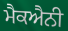
ਮੈਕਐਨੀ